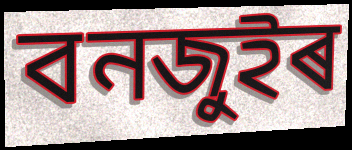
বনজুইৰ